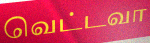
வெட்டவா